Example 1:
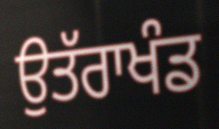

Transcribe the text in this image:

ਉਤੱਰਾਖੰਡ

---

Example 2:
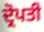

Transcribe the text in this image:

ਦ੍ਰੋਪਤੀ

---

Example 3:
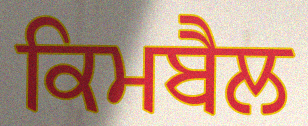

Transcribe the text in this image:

ਕਿਮਬੈਲ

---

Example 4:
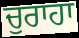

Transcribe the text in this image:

ਚੁਰਾਹਾ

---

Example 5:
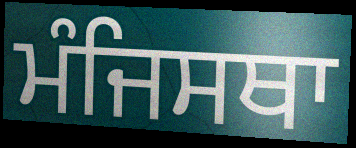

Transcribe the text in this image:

ਮੰਜਿਸਥਾ